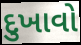
દુખાવો